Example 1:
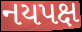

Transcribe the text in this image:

નયપક્ષ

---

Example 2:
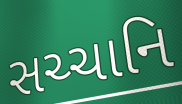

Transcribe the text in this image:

સચ્ચાનિ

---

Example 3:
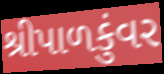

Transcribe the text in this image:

શ્રીપાળકુંવર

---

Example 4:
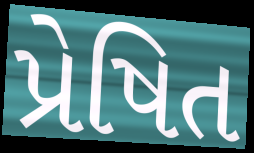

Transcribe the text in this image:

પ્રેષિત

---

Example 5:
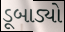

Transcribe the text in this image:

ડૂબાડ્યો